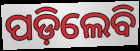
ପଡ଼ିଲେବି